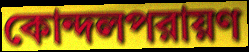
কোন্দলপরায়ণ